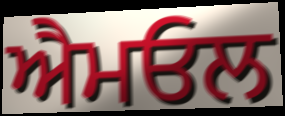
ਐਮਓਲ